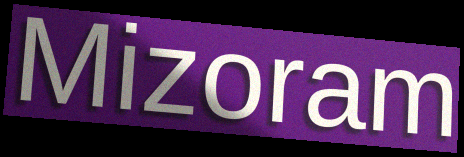
Mizoram